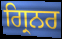
ਗ੍ਰਿਨਰ